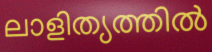
ലാളിത്യത്തിൽ